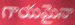
గాయమైనా